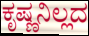
ಕೃಷ್ಣನಿಲ್ಲದ